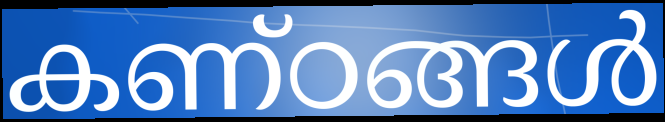
കണ്ഠങ്ങൾ